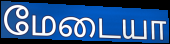
மேடையா